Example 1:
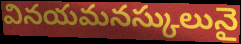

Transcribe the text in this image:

వినయమనస్కులునై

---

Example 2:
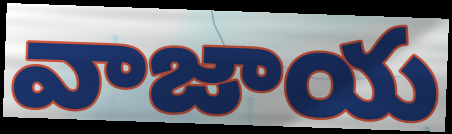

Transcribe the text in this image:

వాజాయ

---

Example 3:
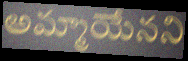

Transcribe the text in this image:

అమ్మాయేనని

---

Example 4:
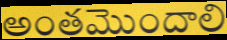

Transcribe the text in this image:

అంతమొందాలి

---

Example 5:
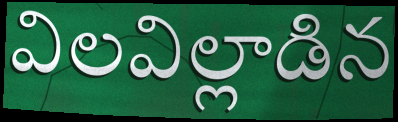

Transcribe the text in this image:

విలవిల్లాడిన